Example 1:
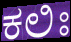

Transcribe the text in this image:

ಕಲಿಃ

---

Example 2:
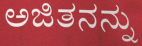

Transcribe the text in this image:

ಅಜಿತನನ್ನು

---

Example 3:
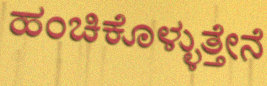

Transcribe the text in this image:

ಹಂಚಿಕೊಳ್ಳುತ್ತೇನೆ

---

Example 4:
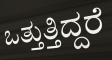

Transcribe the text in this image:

ಒತ್ತುತ್ತಿದ್ದರೆ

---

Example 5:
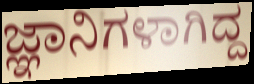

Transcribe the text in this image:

ಜ್ಞಾನಿಗಳಾಗಿದ್ದ